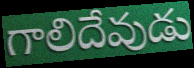
గాలిదేవుడు